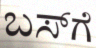
ಬಸ್‍ಗೆ